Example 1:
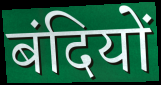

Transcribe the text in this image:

बंदियों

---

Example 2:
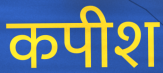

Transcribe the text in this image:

कपीश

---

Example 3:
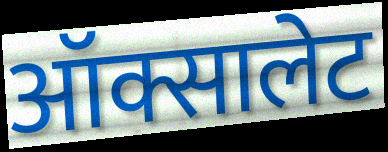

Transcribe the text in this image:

ऑक्सालेट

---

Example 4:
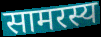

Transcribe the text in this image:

सामरस्य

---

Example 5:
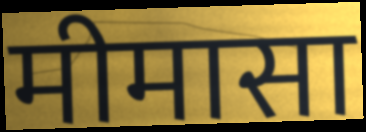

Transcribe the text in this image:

मीमासा